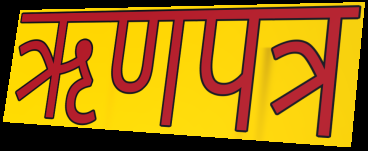
ऋणपत्र